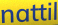
nattil